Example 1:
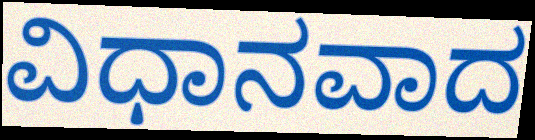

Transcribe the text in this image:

ವಿಧಾನವಾದ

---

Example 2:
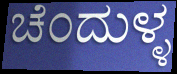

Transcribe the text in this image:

ಚೆಂದುಳ್ಳ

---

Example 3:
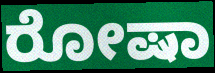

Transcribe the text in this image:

ರೋಷಾ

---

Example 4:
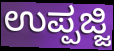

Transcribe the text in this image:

ಉಪ್ಪಜ್ಜಿ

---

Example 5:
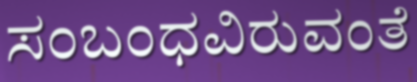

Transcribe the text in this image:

ಸಂಬಂಧವಿರುವಂತೆ